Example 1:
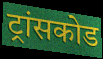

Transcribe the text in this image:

ट्रांसकोड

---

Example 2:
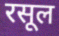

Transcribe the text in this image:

रसूल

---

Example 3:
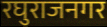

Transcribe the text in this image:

रघुराजनगर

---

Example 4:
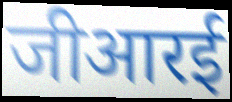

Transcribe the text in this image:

जीआरई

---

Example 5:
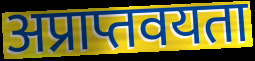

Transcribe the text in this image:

अप्राप्तवयता